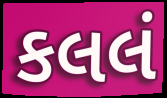
કલલં